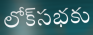
లోక్‌సభకు